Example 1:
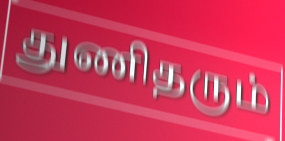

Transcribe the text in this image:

துணிதரும்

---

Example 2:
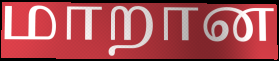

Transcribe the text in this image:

மாறான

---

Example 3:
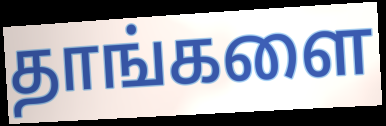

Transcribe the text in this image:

தாங்களை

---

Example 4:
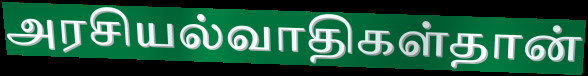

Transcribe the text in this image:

அரசியல்வாதிகள்தான்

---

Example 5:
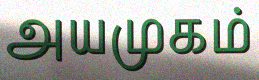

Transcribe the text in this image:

அயமுகம்